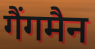
गैंगमैन